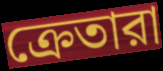
ক্রেতারা